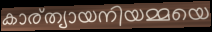
കാര്ത്യായനിയമ്മയെ